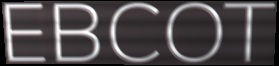
EBCOT